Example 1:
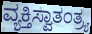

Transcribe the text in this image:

ವ್ಯಕ್ತಿಸ್ವಾತಂತ್ರ್ಯ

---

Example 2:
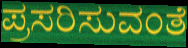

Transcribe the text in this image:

ಪ್ರಸರಿಸುವಂತೆ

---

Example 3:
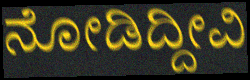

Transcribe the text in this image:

ನೋಡಿದ್ದೀವಿ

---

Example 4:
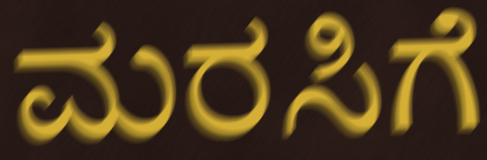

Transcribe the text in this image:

ಮರಸಿಗೆ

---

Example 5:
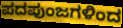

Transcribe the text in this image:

ಪದಪುಂಜಗಳಿಂದ